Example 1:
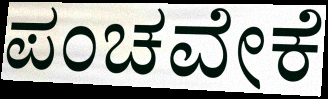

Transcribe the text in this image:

ಪಂಚವೇಕೆ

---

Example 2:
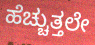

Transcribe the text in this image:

ಹೆಚ್ಚುತ್ತಲೇ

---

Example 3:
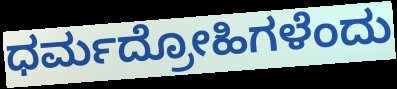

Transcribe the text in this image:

ಧರ್ಮದ್ರೋಹಿಗಳೆಂದು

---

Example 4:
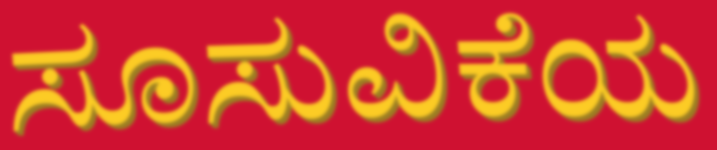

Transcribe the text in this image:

ಸೂಸುವಿಕೆಯ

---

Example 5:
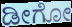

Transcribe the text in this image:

ಡೀಗೋ